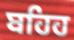
ਬਹਿਹ